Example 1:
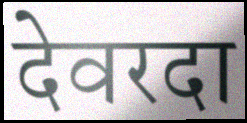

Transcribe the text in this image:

देवरदा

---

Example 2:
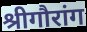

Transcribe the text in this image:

श्रीगौरांग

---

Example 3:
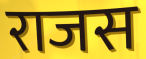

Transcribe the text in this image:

राजस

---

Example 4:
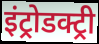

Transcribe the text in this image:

इंट्रोडक्ट्री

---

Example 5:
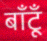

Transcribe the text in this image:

बाँटूँ